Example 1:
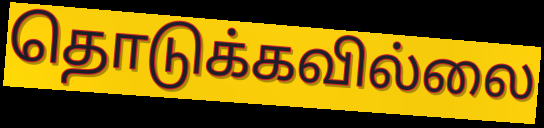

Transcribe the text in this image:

தொடுக்கவில்லை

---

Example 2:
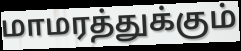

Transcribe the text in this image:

மாமரத்துக்கும்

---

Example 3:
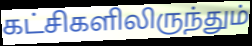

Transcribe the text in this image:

கட்சிகளிலிருந்தும்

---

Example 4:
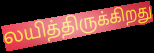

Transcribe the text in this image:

லயித்திருக்கிறது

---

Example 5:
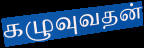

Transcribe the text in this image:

கழுவுவதன்